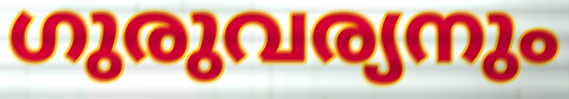
ഗുരുവര്യനും